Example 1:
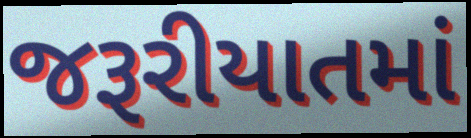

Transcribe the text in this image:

જરૂરીયાતમાં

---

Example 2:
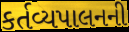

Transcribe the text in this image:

કર્તવ્યપાલનની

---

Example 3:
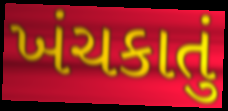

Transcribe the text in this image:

ખંચકાતું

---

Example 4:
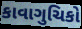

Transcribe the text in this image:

કાવાગુચિકો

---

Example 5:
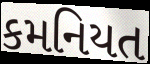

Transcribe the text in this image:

કમનિયત